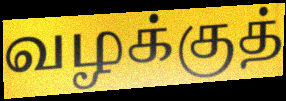
வழக்குத்